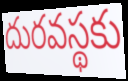
దురవస్థకు